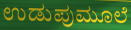
ಉಡುಪುಮೂಲೆ